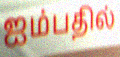
ஐம்பதில்